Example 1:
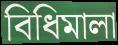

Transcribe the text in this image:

বিধিমালা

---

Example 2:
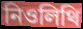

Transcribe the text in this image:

নিওলিথি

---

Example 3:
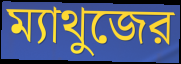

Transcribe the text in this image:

ম্যাথুজের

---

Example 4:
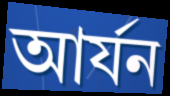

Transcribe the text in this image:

আর্যন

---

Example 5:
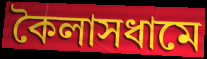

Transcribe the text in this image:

কৈলাসধামে